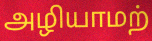
அழியாமற்